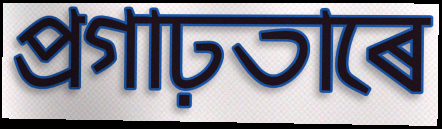
প্ৰগাঢ়তাৰে